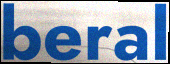
beral